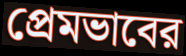
প্রেমভাবের